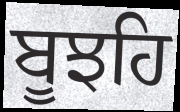
ਬੂਝਹਿ